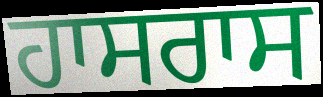
ਹਾਸਰਾਸ